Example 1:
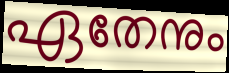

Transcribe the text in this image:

ഏതേനും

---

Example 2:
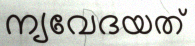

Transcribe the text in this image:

ന്യവേദയത്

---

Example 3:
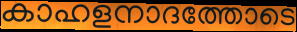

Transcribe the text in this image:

കാഹളനാദത്തോടെ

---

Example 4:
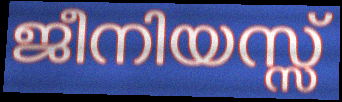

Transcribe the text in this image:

ജീനിയസ്സ്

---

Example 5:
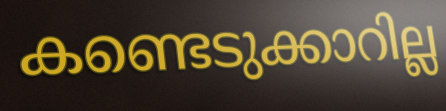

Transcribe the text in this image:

കണ്ടെടുക്കാറില്ല